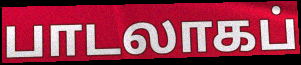
பாடலாகப்